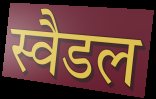
स्वैडल